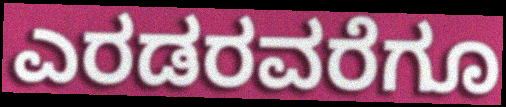
ಎರಡರವರೆಗೂ